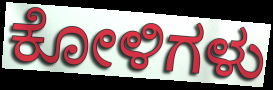
ಕೋಳಿಗಳು